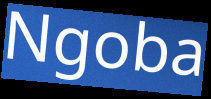
Ngoba